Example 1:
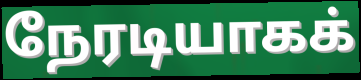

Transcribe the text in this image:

நேரடியாகக்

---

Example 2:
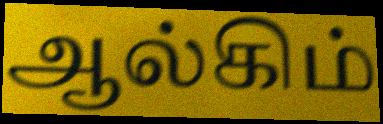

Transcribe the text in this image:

ஆல்கிம்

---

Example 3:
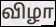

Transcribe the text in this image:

விழா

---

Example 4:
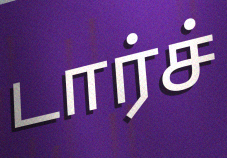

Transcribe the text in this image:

டார்ச்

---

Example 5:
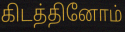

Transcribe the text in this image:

கிடத்தினோம்